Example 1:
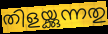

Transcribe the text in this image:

തിളയ്ക്കുന്നതു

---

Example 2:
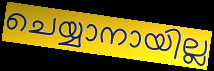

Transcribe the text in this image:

ചെയ്യാനായില്ല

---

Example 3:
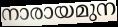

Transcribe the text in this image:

നാരായമുന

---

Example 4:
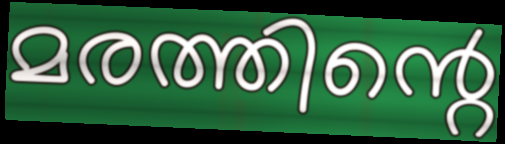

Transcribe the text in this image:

മരത്തിന്റെ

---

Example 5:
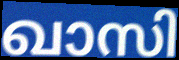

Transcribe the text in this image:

ഖാസി